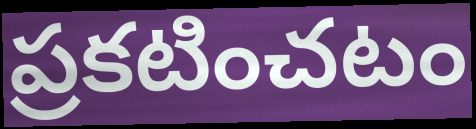
ప్రకటించటం